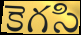
కెగసి